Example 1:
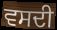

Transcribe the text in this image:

ਵਸਦੀ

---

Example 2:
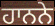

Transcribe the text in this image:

ਹਾਨਨੇ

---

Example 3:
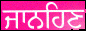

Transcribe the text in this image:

ਜਾਨਹਿਣ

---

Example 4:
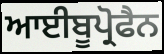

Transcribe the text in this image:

ਆਈਬੂਪ੍ਰੋਫੈਨ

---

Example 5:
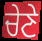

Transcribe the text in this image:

ਚੇਣੇ